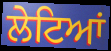
ਲੇਟਿਆਂ